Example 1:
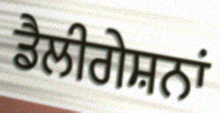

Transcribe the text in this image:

ਡੈਲੀਗੇਸ਼ਨਾਂ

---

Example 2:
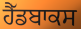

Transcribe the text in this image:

ਹੈੱਡਬਾਕਸ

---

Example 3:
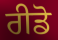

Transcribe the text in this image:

ਰੀਡੋ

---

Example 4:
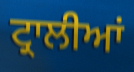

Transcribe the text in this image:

ਟ੍ਰਾਲੀਆਂ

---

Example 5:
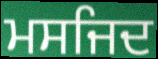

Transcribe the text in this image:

ਮਸਜਿਦ